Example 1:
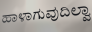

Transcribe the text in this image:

ಹಾಳಾಗುವುದಿಲ್ವಾ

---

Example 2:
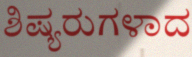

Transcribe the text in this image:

ಶಿಷ್ಯರುಗಳಾದ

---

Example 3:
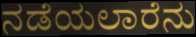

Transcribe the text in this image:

ನಡೆಯಲಾರೆನು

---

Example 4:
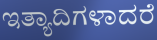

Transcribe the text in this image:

ಇತ್ಯಾದಿಗಳಾದರೆ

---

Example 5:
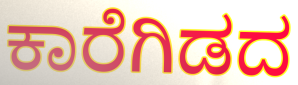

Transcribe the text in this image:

ಕಾರೆಗಿಡದ